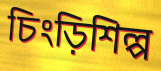
চিংড়িশিল্প